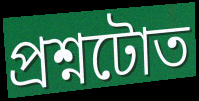
প্ৰশ্নটোত